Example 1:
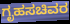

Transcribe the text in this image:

ಗೃಹಸಚಿವರ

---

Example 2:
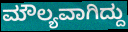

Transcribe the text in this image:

ಮೌಲ್ಯವಾಗಿದ್ದು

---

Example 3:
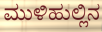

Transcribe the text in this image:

ಮುಳಿಹುಲ್ಲಿನ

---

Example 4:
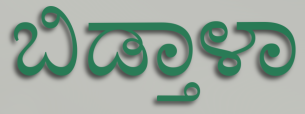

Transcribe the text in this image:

ಬಿಡ್ತಾಳಾ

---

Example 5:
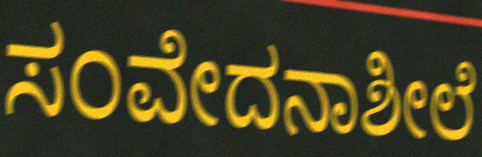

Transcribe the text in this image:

ಸಂವೇದನಾಶೀಲೆ